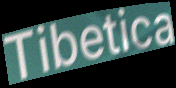
Tibetica